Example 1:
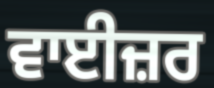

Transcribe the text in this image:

ਵਾਈਜ਼ਰ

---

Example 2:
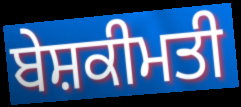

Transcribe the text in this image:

ਬੇਸ਼ਕੀਮਤੀ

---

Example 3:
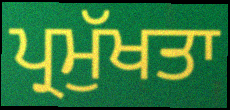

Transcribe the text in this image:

ਪ੍ਰਮੁੱਖਤਾ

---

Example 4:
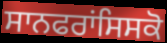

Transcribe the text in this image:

ਸਾਨਫਰਾਂਸਿਸਕੋ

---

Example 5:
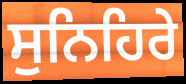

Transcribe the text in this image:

ਸੁਨਿਹਿਰੇ